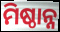
ମିଷ୍ଠାନ୍ନ